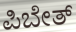
ಪಿಬೇತ್